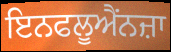
ਇਨਫਲੂਐਂਨਜ਼ਾ